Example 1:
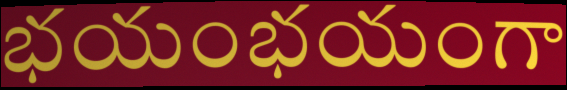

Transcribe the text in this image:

భయంభయంగా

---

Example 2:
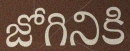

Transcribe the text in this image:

జోగినికి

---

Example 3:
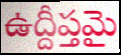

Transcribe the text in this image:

ఉద్దీప్తమై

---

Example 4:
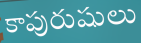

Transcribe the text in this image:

కాపురుషులు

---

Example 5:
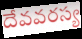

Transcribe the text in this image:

దేవవరస్య